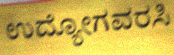
ಉದ್ಯೋಗವರಸಿ